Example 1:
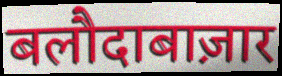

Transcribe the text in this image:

बलौदाबाज़ार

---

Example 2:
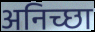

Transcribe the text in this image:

अनिच्छा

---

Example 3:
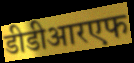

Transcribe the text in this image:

डीडीआरएफ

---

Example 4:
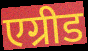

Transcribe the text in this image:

एग्रीड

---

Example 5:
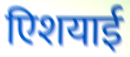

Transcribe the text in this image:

एिशयाई